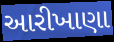
આરીખાણા